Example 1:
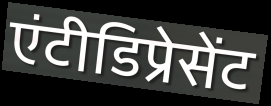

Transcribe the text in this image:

एंटीडिप्रेसेंट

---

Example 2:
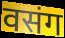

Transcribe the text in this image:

वसंग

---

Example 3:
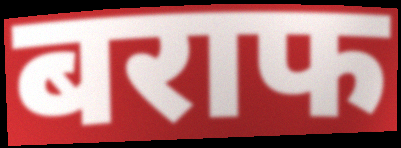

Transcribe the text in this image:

बराफ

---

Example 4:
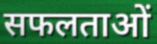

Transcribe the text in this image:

सफलताओं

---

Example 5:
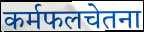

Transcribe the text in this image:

कर्मफलचेतना